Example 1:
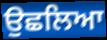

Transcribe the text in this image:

ਉਛਲਿਆ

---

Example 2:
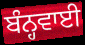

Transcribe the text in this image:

ਬੰਨ੍ਹਵਾਈ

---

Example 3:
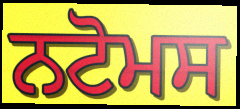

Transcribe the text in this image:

ਨਟੋਮਸ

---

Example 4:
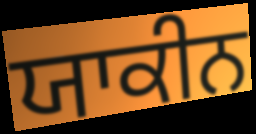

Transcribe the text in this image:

ਯਾਕੀਨ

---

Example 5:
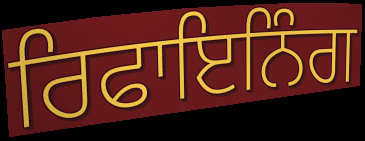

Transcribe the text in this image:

ਰਿਫਾਇਨਿੰਗ